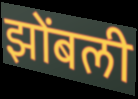
झोंबली